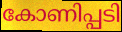
കോണിപ്പടി